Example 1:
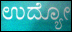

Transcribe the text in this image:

ಉದ್ಯೋ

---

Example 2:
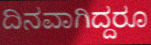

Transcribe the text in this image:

ದಿನವಾಗಿದ್ದರೂ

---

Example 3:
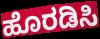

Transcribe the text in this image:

ಹೊರಡಿಸಿ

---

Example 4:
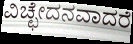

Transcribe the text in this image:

ವಿಚ್ಛೇದನವಾದರೆ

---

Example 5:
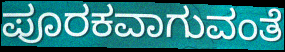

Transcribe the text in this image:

ಪೂರಕವಾಗುವಂತೆ